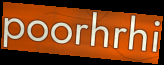
poorhrhi